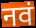
नवं